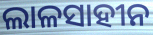
ଲାଳସାହୀନ